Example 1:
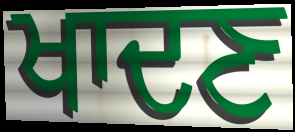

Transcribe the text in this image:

ਖਾਦਣ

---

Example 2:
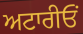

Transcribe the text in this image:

ਅਟਾਰੀਓਂ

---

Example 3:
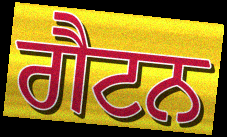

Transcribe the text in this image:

ਗੈਟਨ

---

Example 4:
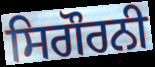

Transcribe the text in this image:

ਸਿਗੌਰਨੀ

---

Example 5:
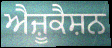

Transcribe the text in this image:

ਐਜ਼ੂਕੈਸ਼ਨ